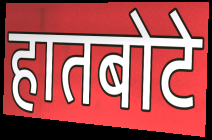
हातबोटे